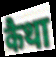
कैथा